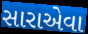
સારાએવા